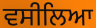
ਵਸੀਲਿਆ